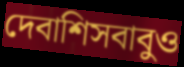
দেবাশিসবাবুও